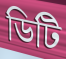
ডিটি